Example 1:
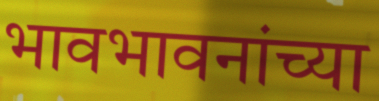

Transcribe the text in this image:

भावभावनांच्या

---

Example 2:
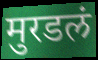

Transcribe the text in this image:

मुरडलं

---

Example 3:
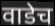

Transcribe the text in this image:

वाडेच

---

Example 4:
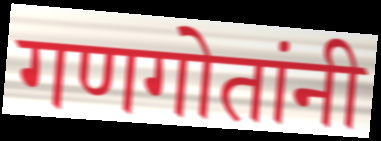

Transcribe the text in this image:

गणगोतांनी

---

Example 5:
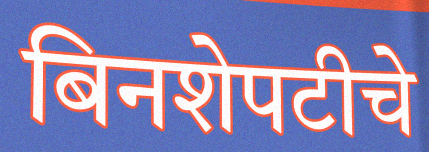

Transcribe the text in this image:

बिनशेपटीचे